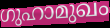
ഗുഹാമുഖം